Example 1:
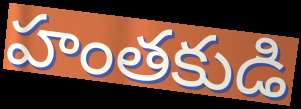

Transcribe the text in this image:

హంతకుడి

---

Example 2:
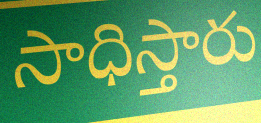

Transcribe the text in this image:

సాధిస్తారు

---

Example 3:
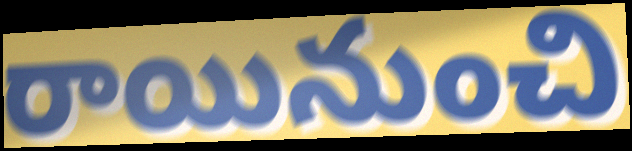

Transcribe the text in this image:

రాయినుంచి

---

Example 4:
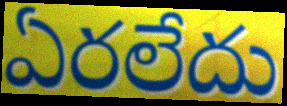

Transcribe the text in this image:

ఏరలేదు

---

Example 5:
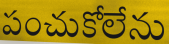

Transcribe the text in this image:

పంచుకోలేను